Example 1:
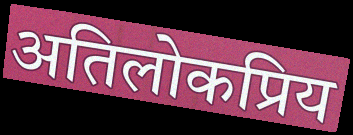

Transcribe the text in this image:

अतिलोकप्रिय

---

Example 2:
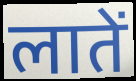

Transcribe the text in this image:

लातें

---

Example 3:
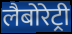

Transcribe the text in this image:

लैबोरेट्री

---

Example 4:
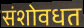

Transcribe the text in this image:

संशोवधत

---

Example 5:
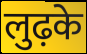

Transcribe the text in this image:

लुढ़के